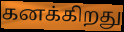
கனக்கிறது